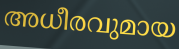
അധീരവുമായ